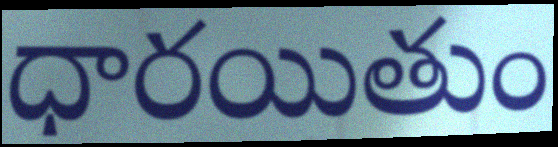
ధారయితుం